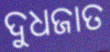
ଦୁଧଜାତ